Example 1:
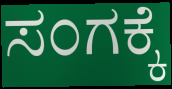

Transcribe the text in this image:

ಸಂಗಕ್ಕೆ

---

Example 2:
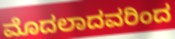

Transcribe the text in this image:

ಮೊದಲಾದವರಿಂದ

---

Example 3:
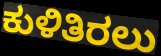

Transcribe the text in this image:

ಕುಳಿತಿರಲು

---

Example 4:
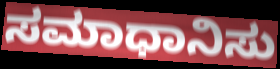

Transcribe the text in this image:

ಸಮಾಧಾನಿಸು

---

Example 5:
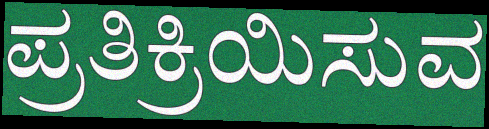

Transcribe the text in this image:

ಪ್ರತಿಕ್ರಿಯಿಸುವ